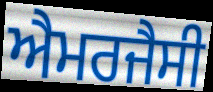
ਐਮਰਜੈਸੀ